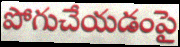
పోగుచేయడంపై